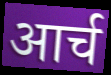
आर्च